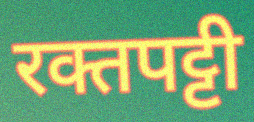
रक्तपट्टी